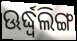
ଊର୍ଦ୍ଧ୍ୱଲିଙ୍ଗ